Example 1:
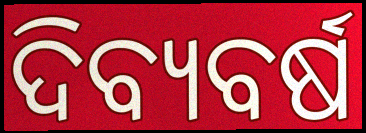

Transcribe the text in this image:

ଦିବ୍ୟବର୍ଷ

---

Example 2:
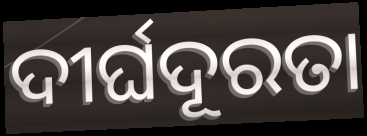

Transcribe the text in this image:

ଦୀର୍ଘଦୂରତା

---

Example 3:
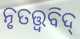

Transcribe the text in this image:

ନୃତତ୍ତ୍ଵବିଦ୍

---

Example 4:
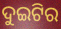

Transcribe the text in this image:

ଦୁଇଟିର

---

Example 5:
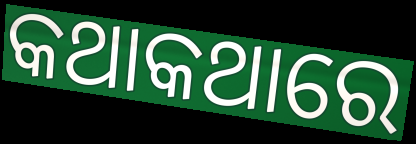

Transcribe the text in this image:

କଥାକଥାରେ